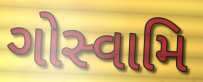
ગોસ્વામિ